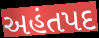
અહંતપદ